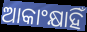
ଆକାଂକ୍ଷାହିଁ